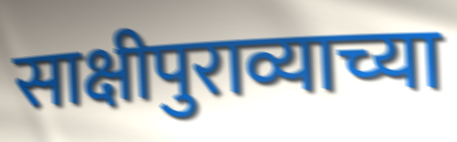
साक्षीपुराव्याच्या